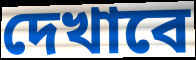
দেখাবে